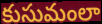
కుసుమంలా